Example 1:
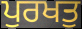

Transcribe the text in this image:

ਪੁਰਖਤੁ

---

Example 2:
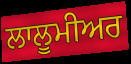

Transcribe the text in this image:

ਲਾਲੂਮੀਅਰ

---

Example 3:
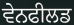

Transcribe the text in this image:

ਵੇਨਫੀਲਡ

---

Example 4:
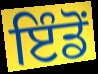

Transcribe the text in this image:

ਇੰਡੋਂ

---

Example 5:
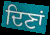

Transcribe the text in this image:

ਦਿਣਾਂ